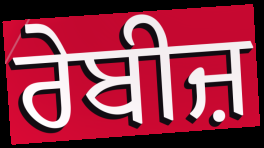
ਰੇਬੀਜ਼